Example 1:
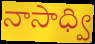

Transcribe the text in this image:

నాసాధ్వి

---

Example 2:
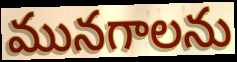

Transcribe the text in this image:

మునగాలను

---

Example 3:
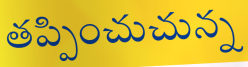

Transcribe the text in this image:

తప్పించుచున్న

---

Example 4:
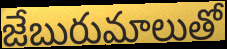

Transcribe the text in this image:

జేబురుమాలుతో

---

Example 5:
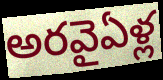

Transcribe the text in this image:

అరవైఏళ్ల